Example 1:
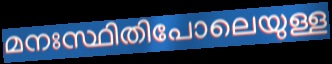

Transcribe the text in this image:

മനഃസ്ഥിതിപോലെയുള്ള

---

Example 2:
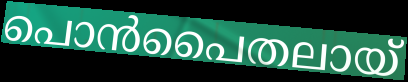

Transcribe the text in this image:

പൊൻപൈതലായ്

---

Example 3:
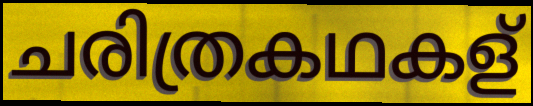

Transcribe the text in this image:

ചരിത്രകഥകള്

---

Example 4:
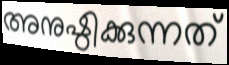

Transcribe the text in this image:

അനുഷ്ഠിക്കുന്നത്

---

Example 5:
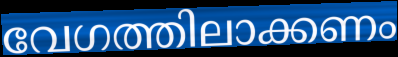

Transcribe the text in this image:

വേഗത്തിലാക്കണം